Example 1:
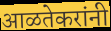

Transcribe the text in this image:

आळतेकरांनी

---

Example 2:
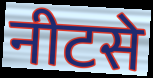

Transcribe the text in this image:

नीटसे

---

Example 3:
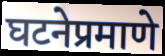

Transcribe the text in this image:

घटनेप्रमाणे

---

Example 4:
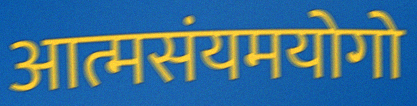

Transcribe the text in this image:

आत्मसंयमयोगो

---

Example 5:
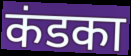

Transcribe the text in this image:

कंडका